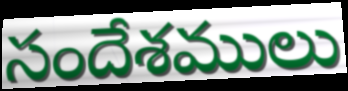
సందేశములు